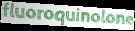
fluoroquinolone